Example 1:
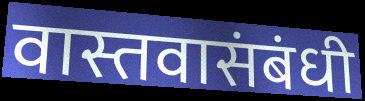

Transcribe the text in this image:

वास्तवासंबंधी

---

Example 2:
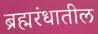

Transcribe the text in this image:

ब्रह्मरंधातील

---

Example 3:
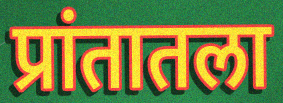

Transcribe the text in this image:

प्रांतातला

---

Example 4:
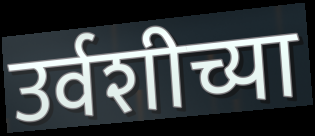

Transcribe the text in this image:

उर्वशीच्या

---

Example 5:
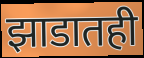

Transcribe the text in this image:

झाडातही